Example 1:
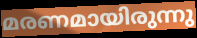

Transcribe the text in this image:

മരണമായിരുന്നു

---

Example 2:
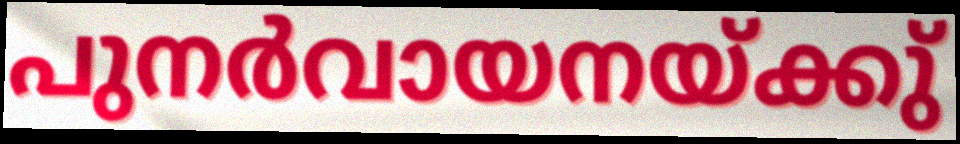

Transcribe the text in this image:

പുനർവായനയ്ക്കു്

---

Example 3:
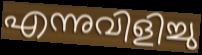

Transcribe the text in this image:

എന്നുവിളിച്ചു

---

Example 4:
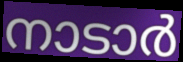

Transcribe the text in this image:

നാടാർ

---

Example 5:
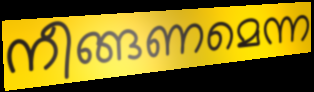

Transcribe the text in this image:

നീങ്ങണമെന്ന